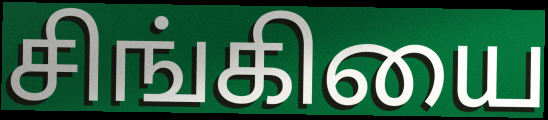
சிங்கியை